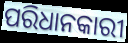
ପରିଧାନକାରୀ